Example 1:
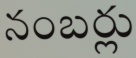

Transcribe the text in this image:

నంబర్లు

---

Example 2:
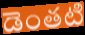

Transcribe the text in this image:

డెంతటి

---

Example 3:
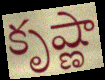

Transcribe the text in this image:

కృష్ణా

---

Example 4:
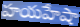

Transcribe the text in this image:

హయహేషా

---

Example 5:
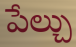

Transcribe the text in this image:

పేల్చు